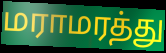
மராமரத்து